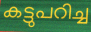
കട്ടുപറിച്ച